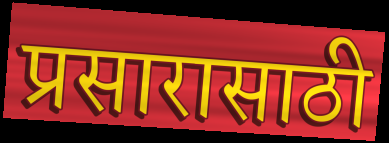
प्रसारासाठी